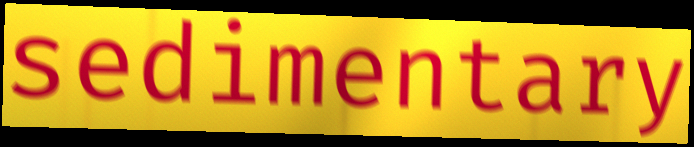
sedimentary